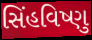
સિંહવિષ્ણુ